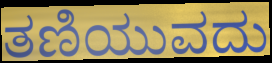
ತಣಿಯುವದು